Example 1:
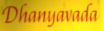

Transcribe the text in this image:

Dhanyavada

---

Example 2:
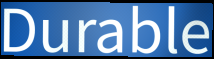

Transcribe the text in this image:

Durable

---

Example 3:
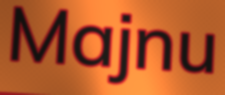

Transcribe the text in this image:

Majnu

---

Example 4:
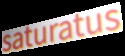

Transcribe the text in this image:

saturatus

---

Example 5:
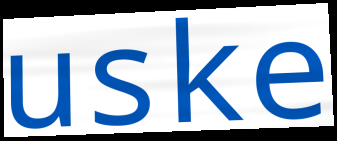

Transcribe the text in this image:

uske